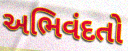
અભિવંદતો